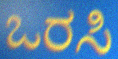
ಒರಸಿ